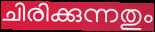
ചിരിക്കുന്നതും